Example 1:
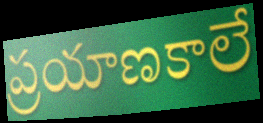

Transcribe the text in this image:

ప్రయాణకాలే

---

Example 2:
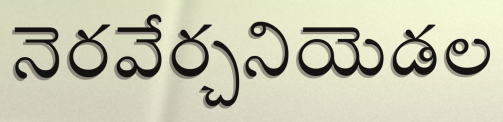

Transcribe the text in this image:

నెరవేర్చనియెడల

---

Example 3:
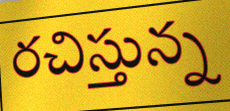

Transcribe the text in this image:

రచిస్తున్న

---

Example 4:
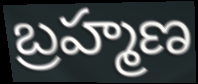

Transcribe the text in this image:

బ్రహ్మణ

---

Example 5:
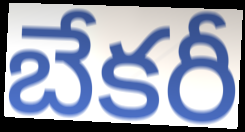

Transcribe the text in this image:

బేకరీ